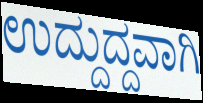
ಉದ್ದುದ್ದವಾಗಿ